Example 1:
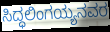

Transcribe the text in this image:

ಸಿದ್ಧಲಿಂಗಯ್ಯನವರ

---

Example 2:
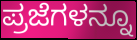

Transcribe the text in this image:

ಪ್ರಜೆಗಳನ್ನೂ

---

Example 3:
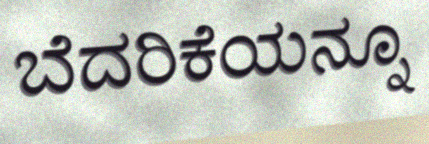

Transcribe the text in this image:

ಬೆದರಿಕೆಯನ್ನೂ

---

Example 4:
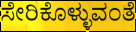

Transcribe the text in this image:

ಸೇರಿಕೊಳ್ಳುವಂತೆ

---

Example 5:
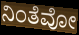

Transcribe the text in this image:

ನಿಂತೆವೋ